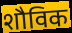
शौविक